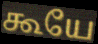
கூயே